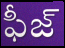
ఫీజ్